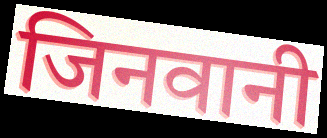
जिनवानी